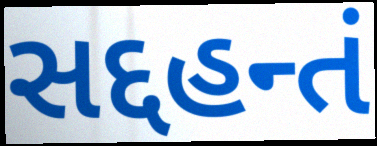
સદ્દહન્તં